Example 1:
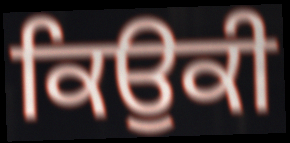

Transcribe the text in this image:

ਕਿਉਕੀ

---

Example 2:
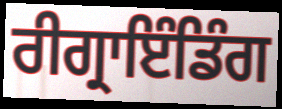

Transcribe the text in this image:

ਰੀਗ੍ਰਾਇੰਡਿੰਗ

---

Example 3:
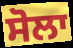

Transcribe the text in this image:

ਸੋਲਾ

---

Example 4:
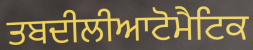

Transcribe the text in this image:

ਤਬਦੀਲੀਆਟੋਮੈਟਿਕ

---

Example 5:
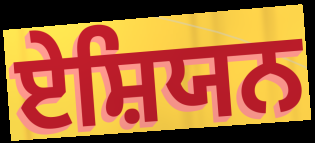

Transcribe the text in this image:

ਏਸ਼ਿਯਨ